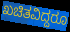
ಖಚಿತವಿದ್ದರೂ